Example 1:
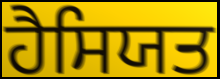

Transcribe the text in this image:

ਹੈਸਿਯਤ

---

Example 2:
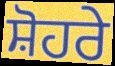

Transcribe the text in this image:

ਸ਼ੋਹਰੇ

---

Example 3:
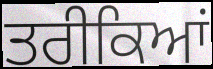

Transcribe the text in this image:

ਤਰੀਕਿਆਂ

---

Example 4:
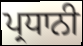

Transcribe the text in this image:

ਪ੍ਰਧਾਨੀ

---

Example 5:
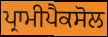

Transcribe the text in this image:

ਪ੍ਰਾਮੀਪੈਕਸੋਲ